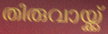
തിരുവായ്ക്ക്